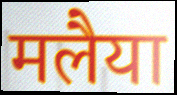
मलैया